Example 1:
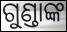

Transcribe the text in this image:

ଗୁଣ୍ଡାଙ୍କ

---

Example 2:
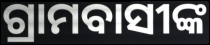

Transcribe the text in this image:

ଗ୍ରାମବାସୀଙ୍କ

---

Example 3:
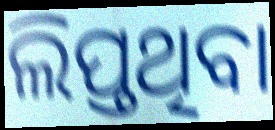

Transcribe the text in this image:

ଲିପ୍ତଥିବା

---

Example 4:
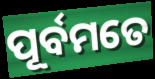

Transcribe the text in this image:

ପୂର୍ବମତେ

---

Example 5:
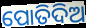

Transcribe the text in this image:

ପୋତିଦିଅ